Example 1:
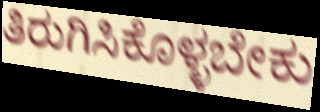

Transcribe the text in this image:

ತಿರುಗಿಸಿಕೊಳ್ಳಬೇಕು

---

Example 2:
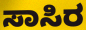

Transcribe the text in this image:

ಸಾಸಿರ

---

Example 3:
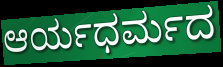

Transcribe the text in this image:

ಆರ್ಯಧರ್ಮದ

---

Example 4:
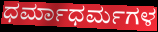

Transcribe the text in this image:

ಧರ್ಮಾಧರ್ಮಗಳ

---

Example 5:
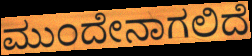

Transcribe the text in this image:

ಮುಂದೇನಾಗಲಿದೆ